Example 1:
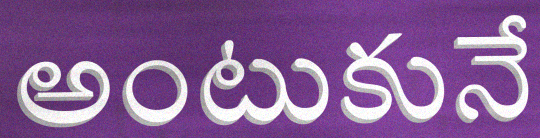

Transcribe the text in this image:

అంటుకునే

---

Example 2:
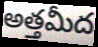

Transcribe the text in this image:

అత్తమీద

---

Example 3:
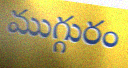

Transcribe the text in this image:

ముగ్గురం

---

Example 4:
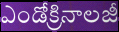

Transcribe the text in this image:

ఎండోక్రినాలజీ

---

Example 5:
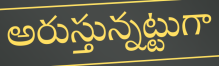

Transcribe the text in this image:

అరుస్తున్నట్టుగా